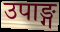
उपाङ्ग